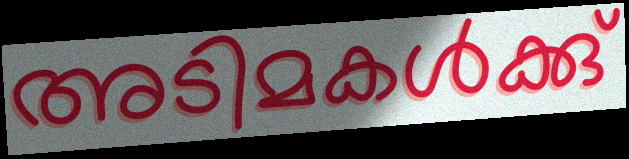
അടിമകൾക്കു്